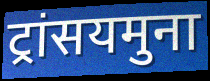
ट्रांसयमुना